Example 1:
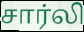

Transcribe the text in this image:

சார்லி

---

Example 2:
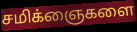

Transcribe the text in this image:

சமிக்ஞைகளை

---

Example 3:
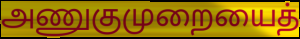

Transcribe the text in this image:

அணுகுமுறையைத்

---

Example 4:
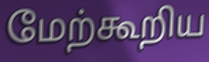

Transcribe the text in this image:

மேற்கூறிய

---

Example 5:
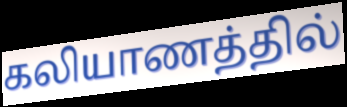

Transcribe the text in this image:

கலியாணத்தில்